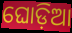
ଘୋଡ଼ିଆ